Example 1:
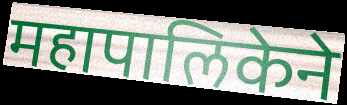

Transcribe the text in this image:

महापालिकेने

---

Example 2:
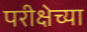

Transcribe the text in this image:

परीक्षेच्या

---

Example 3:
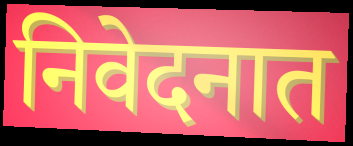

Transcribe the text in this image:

निवेदनात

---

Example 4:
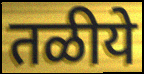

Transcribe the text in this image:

तळीये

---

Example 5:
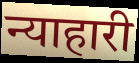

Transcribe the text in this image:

न्याहारी